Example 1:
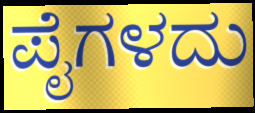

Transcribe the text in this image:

ಪೈಗಳದು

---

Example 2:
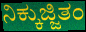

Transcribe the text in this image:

ನಿಕ್ಕುಜ್ಜಿತಂ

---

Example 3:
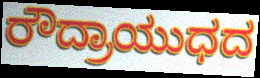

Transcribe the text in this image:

ರೌದ್ರಾಯುಧದ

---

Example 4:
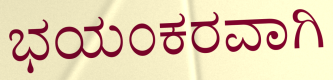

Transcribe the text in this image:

ಭಯಂಕರವಾಗಿ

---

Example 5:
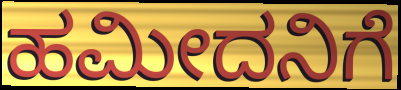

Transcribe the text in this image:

ಹಮೀದನಿಗೆ